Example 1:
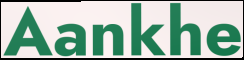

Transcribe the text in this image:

Aankhe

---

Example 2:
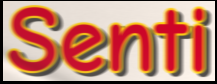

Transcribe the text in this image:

Senti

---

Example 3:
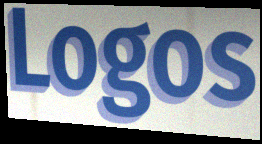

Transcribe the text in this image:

Logos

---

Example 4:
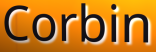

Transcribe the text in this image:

Corbin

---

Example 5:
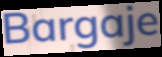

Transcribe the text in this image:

Bargaje